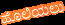
ಹೊಲಿಯಲು